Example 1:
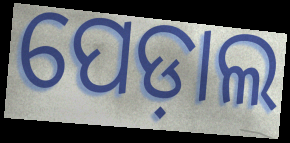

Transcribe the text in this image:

ପେଡ଼ାଲ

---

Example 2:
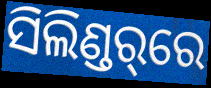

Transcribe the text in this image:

ସିଲିଣ୍ଡର୍‌ରେ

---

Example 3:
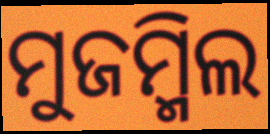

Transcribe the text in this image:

ମୁଜମ୍ମିଲ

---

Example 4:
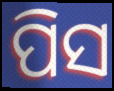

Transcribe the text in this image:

ପିସ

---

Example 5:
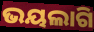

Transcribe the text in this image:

ଭୟଲାଗି